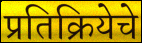
प्रतिक्रियेचे